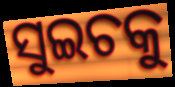
ସୁଇଚକୁ